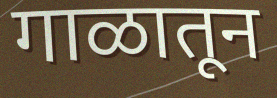
गाळातून